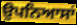
ਉਪਨਿਆਸਾਂ